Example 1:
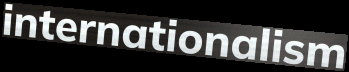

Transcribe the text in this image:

internationalism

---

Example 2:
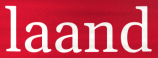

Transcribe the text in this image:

laand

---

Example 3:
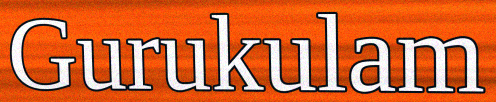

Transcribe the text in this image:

Gurukulam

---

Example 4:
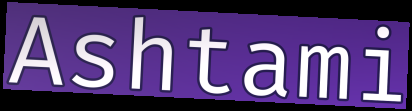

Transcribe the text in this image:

Ashtami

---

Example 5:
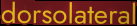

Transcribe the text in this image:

dorsolateral